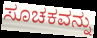
ಸೂಚಕವನ್ನು